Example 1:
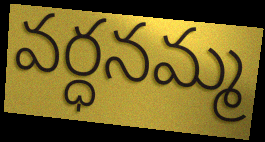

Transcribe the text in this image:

వర్ధనమ్మ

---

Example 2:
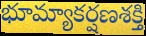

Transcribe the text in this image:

భూమ్యాకర్షణశక్తి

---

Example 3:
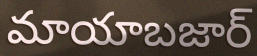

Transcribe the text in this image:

మాయాబజార్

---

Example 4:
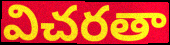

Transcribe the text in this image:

విచరతా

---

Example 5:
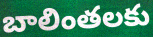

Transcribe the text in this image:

బాలింతలకు